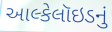
આલ્કેલૉઇડનું